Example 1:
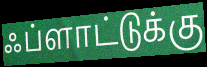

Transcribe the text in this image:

ஃப்ளாட்டுக்கு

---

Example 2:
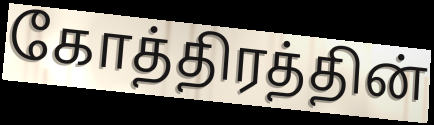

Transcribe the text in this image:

கோத்திரத்தின்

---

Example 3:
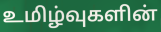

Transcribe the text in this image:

உமிழ்வுகளின்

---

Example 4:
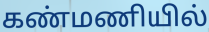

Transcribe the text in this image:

கண்மணியில்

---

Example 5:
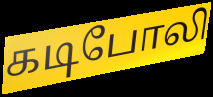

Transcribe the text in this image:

கடிபோலி